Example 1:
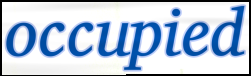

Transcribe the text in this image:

occupied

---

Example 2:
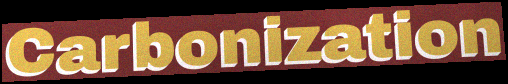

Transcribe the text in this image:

Carbonization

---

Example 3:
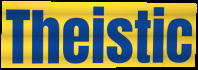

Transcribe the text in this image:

Theistic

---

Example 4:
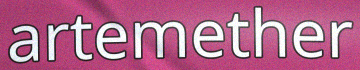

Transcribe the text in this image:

artemether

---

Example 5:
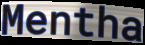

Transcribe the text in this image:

Mentha